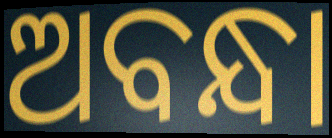
ଅବନ୍ଧା